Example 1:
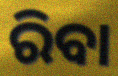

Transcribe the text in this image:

ରିବା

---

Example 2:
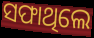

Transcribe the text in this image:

ସଫାଥିଲେ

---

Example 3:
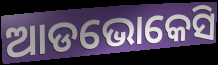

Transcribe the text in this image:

ଆଡଭୋକେସି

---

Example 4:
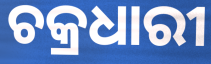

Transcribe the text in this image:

ଚକ୍ରଧାରୀ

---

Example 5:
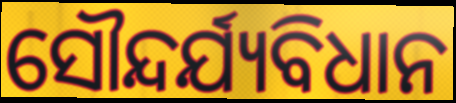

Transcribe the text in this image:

ସୌନ୍ଦର୍ଯ୍ୟବିଧାନ